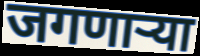
जगणाऱ्या